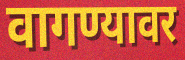
वागण्यावर